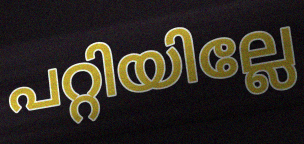
പറ്റിയില്ലേ